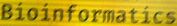
Bioinformatics